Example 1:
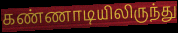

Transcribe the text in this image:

கண்ணாடியிலிருந்து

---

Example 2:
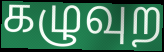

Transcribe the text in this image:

கழுவுற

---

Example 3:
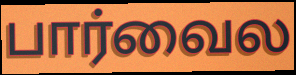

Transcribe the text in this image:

பார்வைல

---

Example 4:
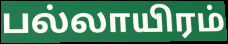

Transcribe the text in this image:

பல்லாயிரம்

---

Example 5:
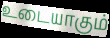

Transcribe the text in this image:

உடையாகும்